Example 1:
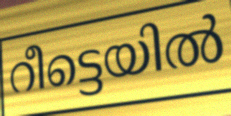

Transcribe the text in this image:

റീട്ടെയിൽ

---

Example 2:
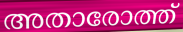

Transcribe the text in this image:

അതാരോത്ത്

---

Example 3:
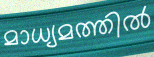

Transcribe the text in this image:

മാധ്യമത്തിൽ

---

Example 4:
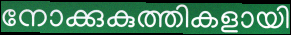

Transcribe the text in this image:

നോക്കുകുത്തികളായി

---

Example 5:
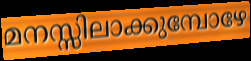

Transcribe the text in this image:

മനസ്സിലാക്കുമ്പോഴേ